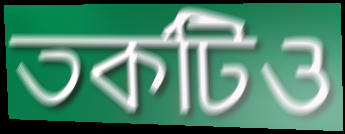
তর্কটিও